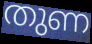
തുണ